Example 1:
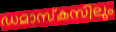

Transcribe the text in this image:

ഡമാസ്കസിലും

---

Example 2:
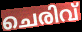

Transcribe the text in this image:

ചെരിവ്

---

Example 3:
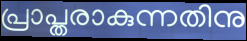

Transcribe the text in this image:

പ്രാപ്തരാകുന്നതിനു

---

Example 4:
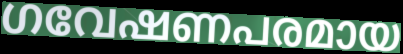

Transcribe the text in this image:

ഗവേഷണപരമായ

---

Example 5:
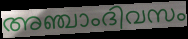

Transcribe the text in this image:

അഞ്ചാംദിവസം